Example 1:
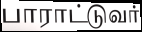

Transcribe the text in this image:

பாராட்டுவர்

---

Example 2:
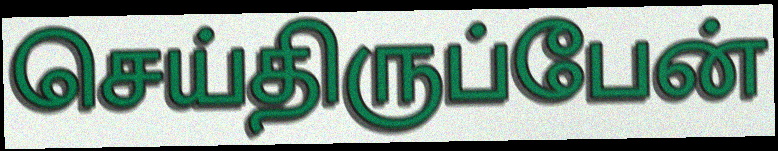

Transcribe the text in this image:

செய்திருப்பேன்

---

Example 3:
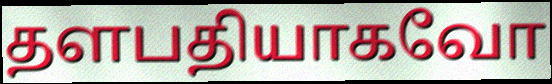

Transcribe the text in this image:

தளபதியாகவோ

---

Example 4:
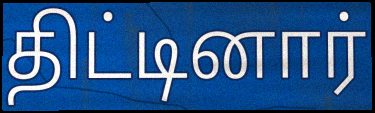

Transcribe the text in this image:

திட்டினார்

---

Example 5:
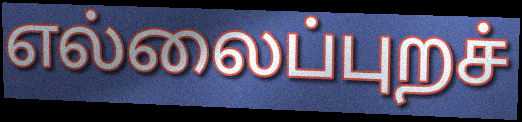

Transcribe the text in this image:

எல்லைப்புறச்